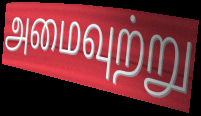
அமைவுற்று